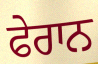
ਫੇਰਾਨ